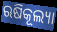
ଋଷିକୂଲ୍ୟା